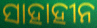
ସାହାହୀନ